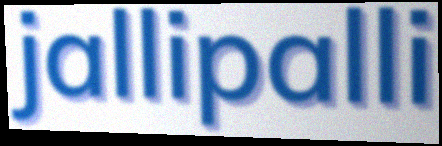
jallipalli